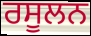
ਰਸੂਲਨ